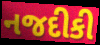
નજદીકી